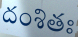
దంశితః